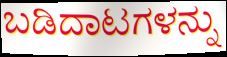
ಬಡಿದಾಟಗಳನ್ನು